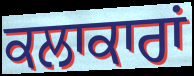
ਕਲਾਕਾਰਾਂ